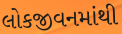
લોકજીવનમાંથી